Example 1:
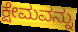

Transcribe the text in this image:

ಕ್ಷೇಮವನ್ನು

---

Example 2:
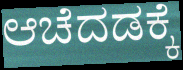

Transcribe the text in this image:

ಆಚೆದಡಕ್ಕೆ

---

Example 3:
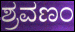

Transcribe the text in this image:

ಶ್ರವಣಂ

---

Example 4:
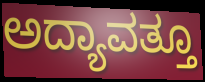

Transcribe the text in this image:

ಅದ್ಯಾವತ್ತೂ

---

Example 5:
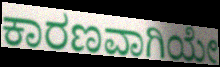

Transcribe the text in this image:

ಕಾರಣವಾಗಿಯೇ